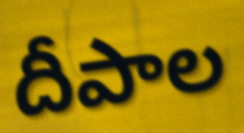
దీపాల